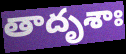
తాదృశాః